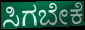
ಸಿಗಬೇಕೆ